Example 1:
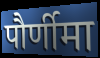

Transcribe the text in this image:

पौर्णीमा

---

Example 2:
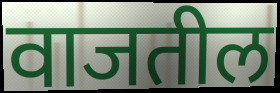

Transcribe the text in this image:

वाजतील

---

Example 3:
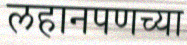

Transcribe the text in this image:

लहानपणच्या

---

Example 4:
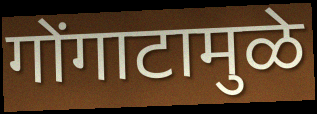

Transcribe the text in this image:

गोंगाटामुळे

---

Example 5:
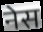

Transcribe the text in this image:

नेस